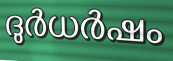
ദുർധർഷം